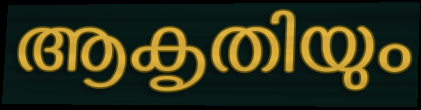
ആകൃതിയും